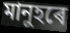
মানুহৰে